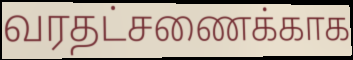
வரதட்சணைக்காக